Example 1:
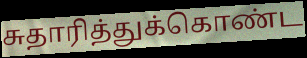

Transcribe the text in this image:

சுதாரித்துக்கொண்ட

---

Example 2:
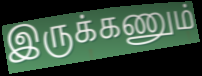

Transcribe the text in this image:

இருக்கணும்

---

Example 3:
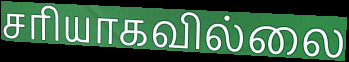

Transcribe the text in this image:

சரியாகவில்லை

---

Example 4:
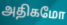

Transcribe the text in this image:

அதிகமோ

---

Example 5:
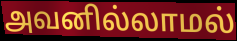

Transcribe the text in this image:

அவனில்லாமல்